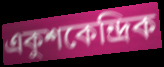
একুশকেন্দ্রিক